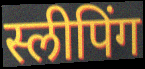
स्लीपिंग